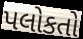
પલોકતો